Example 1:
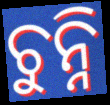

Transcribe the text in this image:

ଚୁନ୍ନି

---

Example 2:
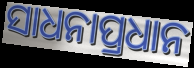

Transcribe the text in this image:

ସାଧନାପ୍ରଧାନ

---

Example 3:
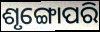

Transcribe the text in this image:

ଶୃଙ୍ଗୋପରି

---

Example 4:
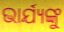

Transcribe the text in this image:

ଭାର୍ଯ୍ୟଙ୍କୁ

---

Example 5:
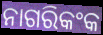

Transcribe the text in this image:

ନାଗରିକଂକ